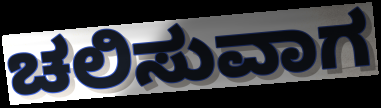
ಚಲಿಸುವಾಗ